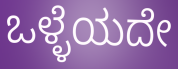
ಒಳ್ಳೆಯದೇ